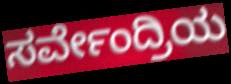
ಸರ್ವೇಂದ್ರಿಯ